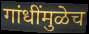
गांधींमुळेच